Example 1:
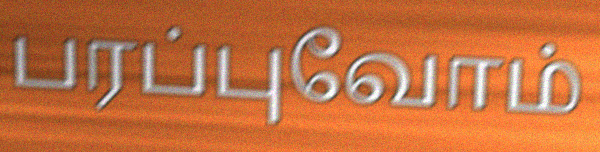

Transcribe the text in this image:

பரப்புவோம்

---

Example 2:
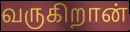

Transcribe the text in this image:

வருகிறான்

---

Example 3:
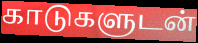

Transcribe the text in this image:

காடுகளுடன்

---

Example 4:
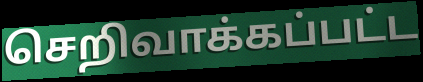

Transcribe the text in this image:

செறிவாக்கப்பட்ட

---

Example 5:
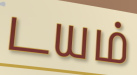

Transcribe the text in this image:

டயம்